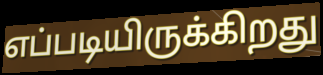
எப்படியிருக்கிறது